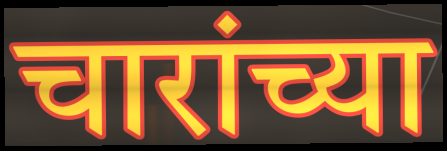
चारांच्या